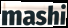
mashi